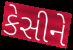
કેસીને